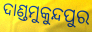
ଦାଣ୍ଡମୁକୁନ୍ଦପୁର